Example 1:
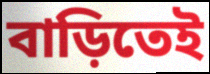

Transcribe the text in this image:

বাড়িতেই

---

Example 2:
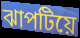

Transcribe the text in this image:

ঝাপটিয়ে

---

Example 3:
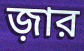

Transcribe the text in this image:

জ়ার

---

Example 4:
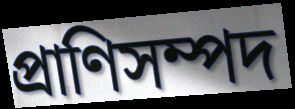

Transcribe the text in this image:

প্রাণিসম্পদ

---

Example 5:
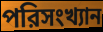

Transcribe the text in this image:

পরিসংখ্যান